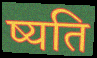
ष्यति